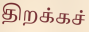
திறக்கச்